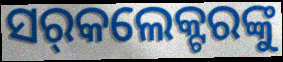
ସର୍‌କଲେକ୍ଟରଙ୍କୁ